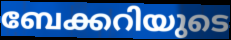
ബേക്കറിയുടെ